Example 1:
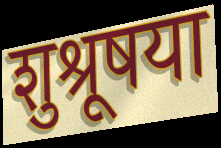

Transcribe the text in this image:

शुश्रूषया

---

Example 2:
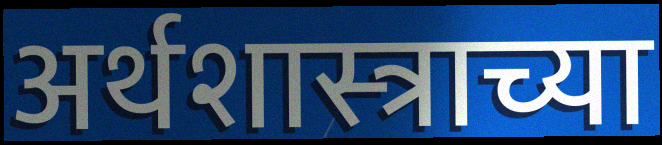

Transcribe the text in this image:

अर्थशास्त्राच्या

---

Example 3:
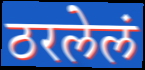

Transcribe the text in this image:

ठरलेलं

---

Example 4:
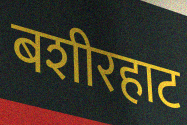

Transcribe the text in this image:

बशीरहाट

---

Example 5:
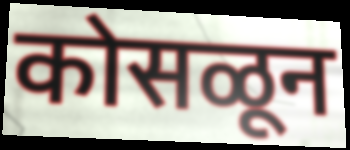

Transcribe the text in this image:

कोसळून